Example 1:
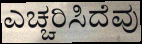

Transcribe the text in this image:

ಎಚ್ಚರಿಸಿದೆವು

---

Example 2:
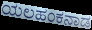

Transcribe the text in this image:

ಯಲಹಂಕನಾಡ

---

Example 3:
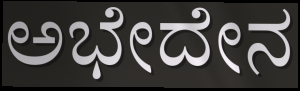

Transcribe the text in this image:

ಅಭೇದೇನ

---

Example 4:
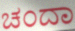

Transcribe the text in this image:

ಚಂದಾ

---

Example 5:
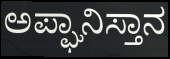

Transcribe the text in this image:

ಅಪ್ಘಾನಿಸ್ತಾನ